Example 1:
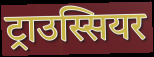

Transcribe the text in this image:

ट्राउस्सियर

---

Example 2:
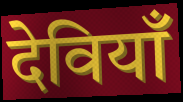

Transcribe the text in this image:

देवियाँ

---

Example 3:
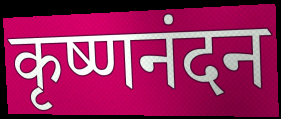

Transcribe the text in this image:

कृष्णनंदन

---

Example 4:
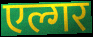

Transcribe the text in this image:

एल्गर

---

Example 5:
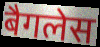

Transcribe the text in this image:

बैगलेस